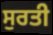
ਸੁਰਤੀ